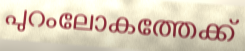
പുറംലോകത്തേക്ക്